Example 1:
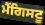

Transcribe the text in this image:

ਮੈਂਗਿਸਟੂ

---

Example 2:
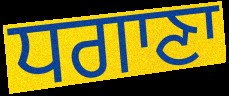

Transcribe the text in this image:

ਧਗਾਣਾ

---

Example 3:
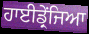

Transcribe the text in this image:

ਹਾਈਡ੍ਰੇਂਜਿਆ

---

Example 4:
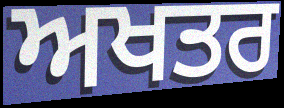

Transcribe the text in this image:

ਅਖਤਰ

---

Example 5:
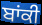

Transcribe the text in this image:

ਬਾਂਕੀ